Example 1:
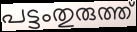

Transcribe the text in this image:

പട്ടംതുരുത്ത്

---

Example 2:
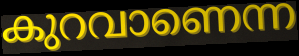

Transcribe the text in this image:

കുറവാണെന്ന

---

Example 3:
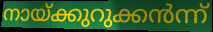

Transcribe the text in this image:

നായ്ക്കുറുക്കൻന്ന്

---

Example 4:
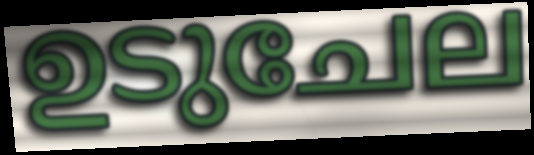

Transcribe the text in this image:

ഉടുചേല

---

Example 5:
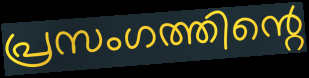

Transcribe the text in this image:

പ്രസംഗത്തിന്റെ